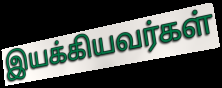
இயக்கியவர்கள்